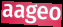
aageo